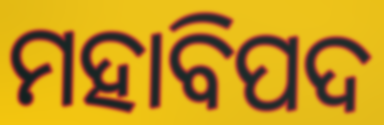
ମହାବିପଦ